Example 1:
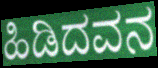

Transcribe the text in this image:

ಹಿಡಿದವನ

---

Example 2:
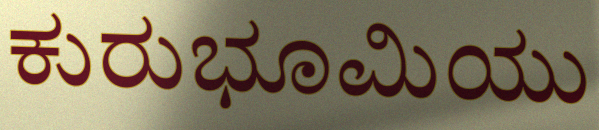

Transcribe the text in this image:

ಕುರುಭೂಮಿಯು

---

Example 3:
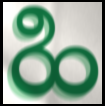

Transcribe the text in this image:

ಹಿ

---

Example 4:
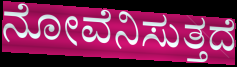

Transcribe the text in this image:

ನೋವೆನಿಸುತ್ತದೆ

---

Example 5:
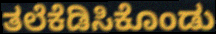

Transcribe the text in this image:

ತಲೆಕೆಡಿಸಿಕೊಂಡು